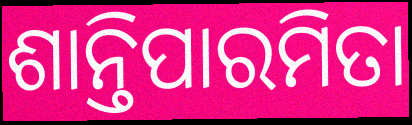
ଶାନ୍ତିପାରମିତା